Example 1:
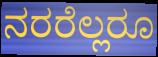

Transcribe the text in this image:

ನರರೆಲ್ಲರೂ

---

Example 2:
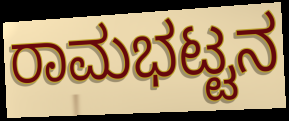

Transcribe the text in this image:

ರಾಮಭಟ್ಟನ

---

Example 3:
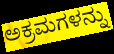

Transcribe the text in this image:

ಅಕ್ರಮಗಳನ್ನು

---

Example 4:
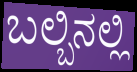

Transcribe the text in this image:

ಬಲ್ಬಿನಲ್ಲಿ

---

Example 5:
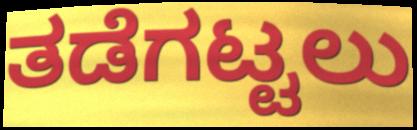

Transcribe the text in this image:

ತಡೆಗಟ್ಟಲು